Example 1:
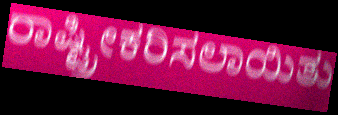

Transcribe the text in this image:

ರಾಷ್ಟ್ರೀಕರಿಸಲಾಯಿತು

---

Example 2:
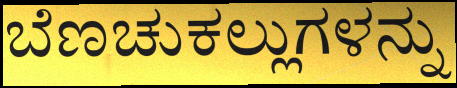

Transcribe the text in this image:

ಬೆಣಚುಕಲ್ಲುಗಳನ್ನು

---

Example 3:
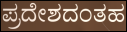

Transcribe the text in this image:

ಪ್ರದೇಶದಂತಹ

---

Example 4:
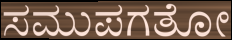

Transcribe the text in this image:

ಸಮುಪಗತೋ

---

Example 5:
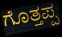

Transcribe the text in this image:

ಗೊತ್ತಪ್ಪ